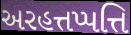
અરહત્તપ્પત્તિ